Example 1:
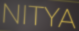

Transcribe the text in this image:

NITYA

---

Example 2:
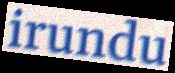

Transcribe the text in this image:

irundu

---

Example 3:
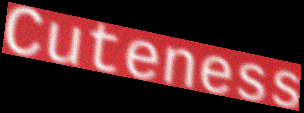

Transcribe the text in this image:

Cuteness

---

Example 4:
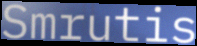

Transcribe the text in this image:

Smrutis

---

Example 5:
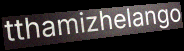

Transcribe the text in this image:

tthamizhelango